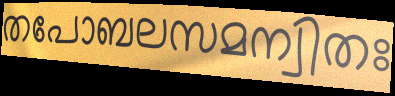
തപോബലസമന്വിതഃ